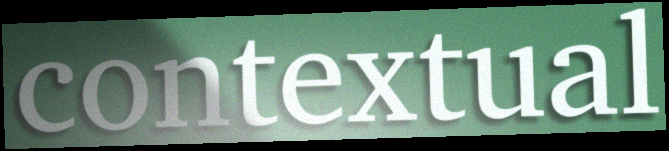
contextual